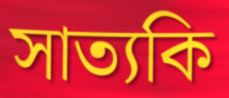
সাত্যকি